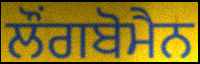
ਲੌਂਗਬੋਮੈਨ